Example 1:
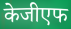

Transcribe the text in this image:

केजीएफ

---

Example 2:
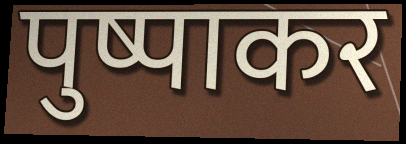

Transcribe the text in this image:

पुष्पाकर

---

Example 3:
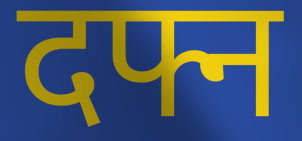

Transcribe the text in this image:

दफ्न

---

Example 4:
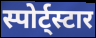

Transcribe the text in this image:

स्पोर्ट्स्टार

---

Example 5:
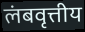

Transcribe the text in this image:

लंबवृत्तीय